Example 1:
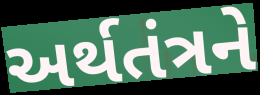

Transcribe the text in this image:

અર્થતંત્રને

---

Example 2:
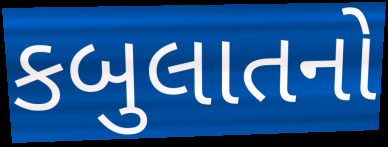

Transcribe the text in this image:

કબુલાતનો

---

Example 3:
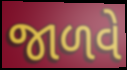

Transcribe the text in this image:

જાળવે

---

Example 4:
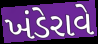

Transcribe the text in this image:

ખંડેરાવે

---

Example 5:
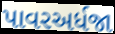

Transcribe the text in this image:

પાવરઅર્ધજા